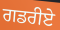
ਗਡਰੀਏ